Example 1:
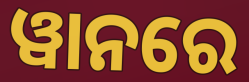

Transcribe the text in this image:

ୱାନରେ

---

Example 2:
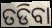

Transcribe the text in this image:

ତଡିବା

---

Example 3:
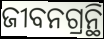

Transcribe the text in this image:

ଜୀବନଗ୍ରନ୍ଥି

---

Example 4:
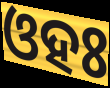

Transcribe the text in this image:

ଓହଃ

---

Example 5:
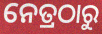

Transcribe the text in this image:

ନେତ୍ରଠାରୁ